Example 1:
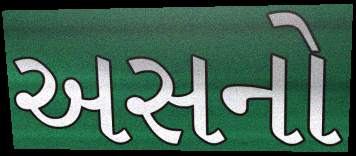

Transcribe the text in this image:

અસનો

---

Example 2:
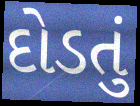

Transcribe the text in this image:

દોડતું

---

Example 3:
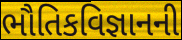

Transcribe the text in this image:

ભૌતિકવિજ્ઞાનની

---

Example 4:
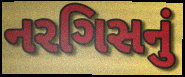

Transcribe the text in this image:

નરગિસનું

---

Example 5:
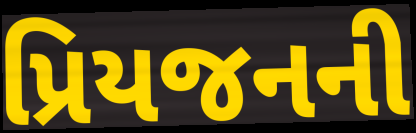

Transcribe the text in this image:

પ્રિયજનની